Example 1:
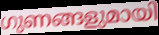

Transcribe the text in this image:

ഗുണങ്ങളുമായി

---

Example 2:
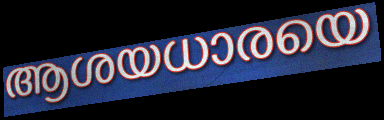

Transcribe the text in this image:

ആശയധാരയെ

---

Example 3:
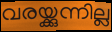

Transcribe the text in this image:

വരയ്ക്കുന്നില്ല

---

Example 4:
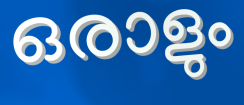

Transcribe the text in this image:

ഒരാളും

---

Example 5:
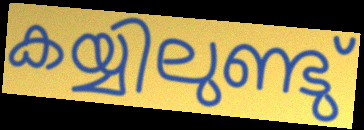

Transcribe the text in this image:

കയ്യിലുണ്ടു്